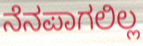
ನೆನಪಾಗಲಿಲ್ಲ